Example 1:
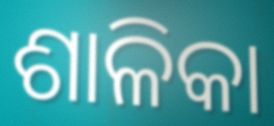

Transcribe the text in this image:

ଶାଳିକା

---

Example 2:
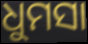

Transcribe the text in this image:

ଧୁମସା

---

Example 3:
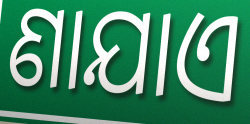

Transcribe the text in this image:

ଣାଯାଏ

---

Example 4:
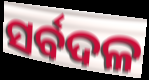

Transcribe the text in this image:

ସର୍ବଦଳ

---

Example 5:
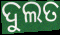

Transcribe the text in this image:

ଦୁଲତ